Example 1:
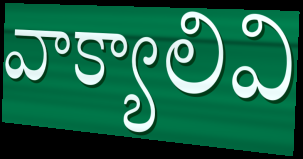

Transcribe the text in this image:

వాక్యాలివి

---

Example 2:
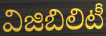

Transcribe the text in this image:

విజిబిలిటీ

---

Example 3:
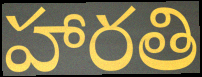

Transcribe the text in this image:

హారతి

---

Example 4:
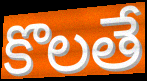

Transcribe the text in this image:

కొలతే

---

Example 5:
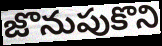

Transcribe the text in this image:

జొనుపుకొని